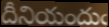
దీనియందుఁ